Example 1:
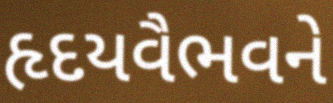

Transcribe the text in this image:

હૃદયવૈભવને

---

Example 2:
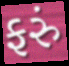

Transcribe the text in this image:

ફરું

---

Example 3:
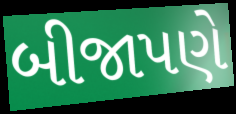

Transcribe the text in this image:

બીજાપણે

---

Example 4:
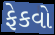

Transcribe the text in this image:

ફેકવો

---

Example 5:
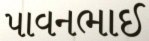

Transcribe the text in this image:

પાવનભાઈ